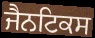
ਜੈਨਟਿਕਸ